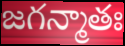
జగన్మాతః